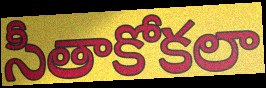
సీతాకోకలా